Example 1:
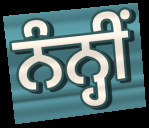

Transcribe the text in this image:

ਨੰਨ੍ਹੀਂ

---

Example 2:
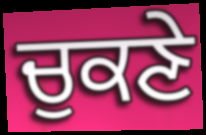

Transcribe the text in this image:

ਚੁਕਣੇ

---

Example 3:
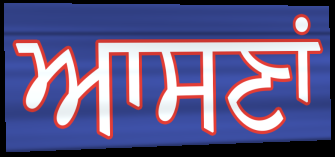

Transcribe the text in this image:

ਆਸਣਾਂ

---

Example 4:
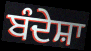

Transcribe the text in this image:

ਬੰਦੇਸ਼ਾ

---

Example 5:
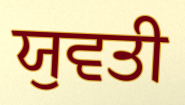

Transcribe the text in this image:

ਯੁਵਤੀ